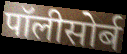
पॉलीसोर्ब